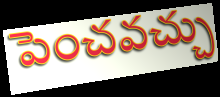
పెంచవచ్చు